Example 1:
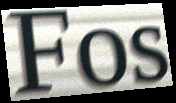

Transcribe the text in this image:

Fos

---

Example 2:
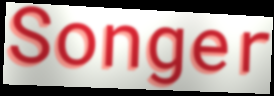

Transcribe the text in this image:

Songer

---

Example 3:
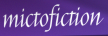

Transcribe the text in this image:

mictofiction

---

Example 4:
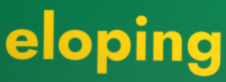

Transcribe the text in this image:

eloping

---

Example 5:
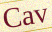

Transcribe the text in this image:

Cav